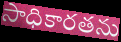
సాధికారతను